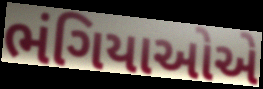
ભંગિયાઓએ